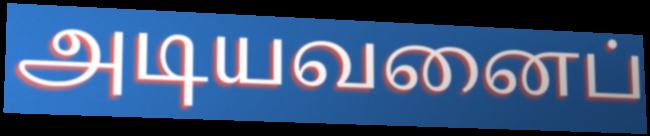
அடியவனைப்